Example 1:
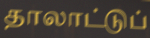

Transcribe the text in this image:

தாலாட்டுப்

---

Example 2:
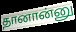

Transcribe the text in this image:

தானான்னு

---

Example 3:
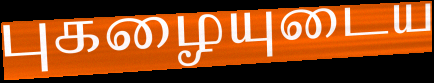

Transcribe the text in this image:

புகழையுடைய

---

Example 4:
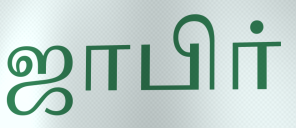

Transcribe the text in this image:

ஜாபிர்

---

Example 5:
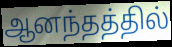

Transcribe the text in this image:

ஆனந்தத்தில்